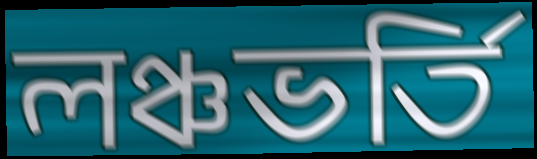
লঞ্চভর্তি